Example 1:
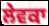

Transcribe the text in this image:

ਲੇਵਕਾ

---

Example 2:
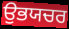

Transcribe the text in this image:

ਉਭਯਚਰ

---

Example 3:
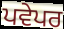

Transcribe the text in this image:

ਪਵੇਪਰ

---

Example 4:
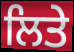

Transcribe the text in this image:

ਲਿਤੇ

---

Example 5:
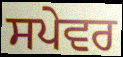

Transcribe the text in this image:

ਸਪੇਵਰ